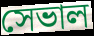
সেভাল